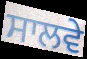
ਸਾਲਵੇ